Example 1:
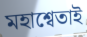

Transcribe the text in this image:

মহাশ্বেতাই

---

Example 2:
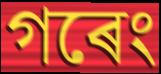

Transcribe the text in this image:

গৰেং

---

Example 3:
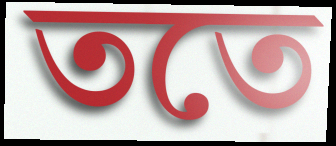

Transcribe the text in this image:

ততে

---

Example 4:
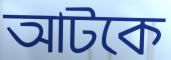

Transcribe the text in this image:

আটকে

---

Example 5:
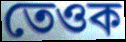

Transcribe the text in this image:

তেওক